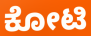
ಕೋಟಿ